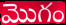
మొగం